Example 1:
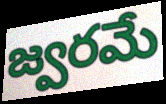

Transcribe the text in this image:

జ్వరమే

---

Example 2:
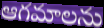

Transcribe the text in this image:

ఆగమాలను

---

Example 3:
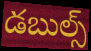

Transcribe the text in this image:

డబుల్స్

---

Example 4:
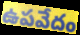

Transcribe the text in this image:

ఉపవేదం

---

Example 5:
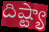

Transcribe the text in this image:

దిష్ట్యా